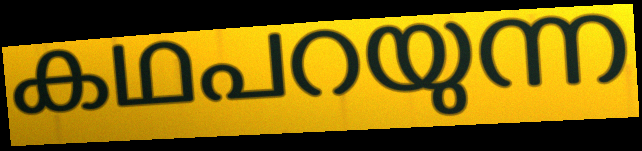
കഥപറയുന്ന